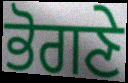
ਭੋਗਣੇ